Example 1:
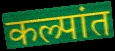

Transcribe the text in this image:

कल्पांत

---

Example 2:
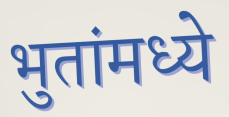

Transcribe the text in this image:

भुतांमध्ये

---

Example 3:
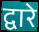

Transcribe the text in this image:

द्वारे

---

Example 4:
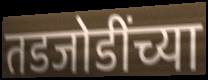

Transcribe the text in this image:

तडजोडींच्या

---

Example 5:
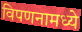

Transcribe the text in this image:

विपणनामध्ये